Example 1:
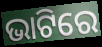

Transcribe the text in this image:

ଭାଟିରେ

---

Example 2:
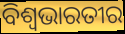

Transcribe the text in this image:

ବିଶ୍ୱଭାରତୀର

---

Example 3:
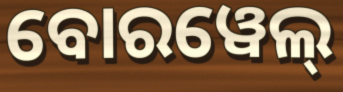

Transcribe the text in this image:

ବୋରୱେଲ୍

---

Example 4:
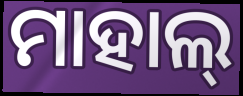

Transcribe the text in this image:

ମାହାଲ୍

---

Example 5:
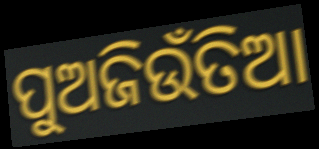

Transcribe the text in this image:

ପୁଅଜିଉଁତିଆ